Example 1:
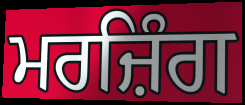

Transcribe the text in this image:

ਮਰਜ਼ਿੰਗ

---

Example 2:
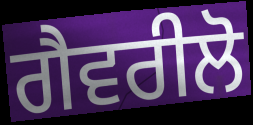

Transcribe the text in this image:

ਗੈਵਰੀਲੋ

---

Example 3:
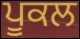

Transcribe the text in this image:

ਪੂਕਲ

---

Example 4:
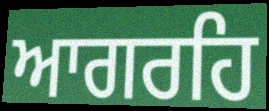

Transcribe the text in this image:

ਆਗਰਹਿ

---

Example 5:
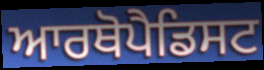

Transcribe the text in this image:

ਆਰਥੋਪੈਡਿਸਟ